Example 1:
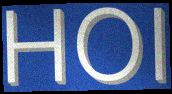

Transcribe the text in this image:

HOI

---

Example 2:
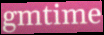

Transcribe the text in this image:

gmtime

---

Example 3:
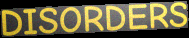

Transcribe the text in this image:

DISORDERS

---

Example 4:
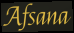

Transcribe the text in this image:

Afsana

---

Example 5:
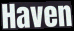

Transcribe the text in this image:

Haven